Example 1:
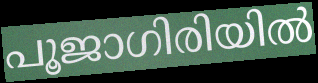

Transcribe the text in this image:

പൂജാഗിരിയിൽ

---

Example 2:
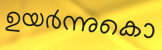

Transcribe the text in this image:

ഉയർന്നുകൊ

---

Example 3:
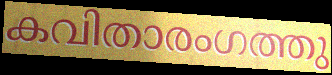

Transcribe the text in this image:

കവിതാരംഗത്തു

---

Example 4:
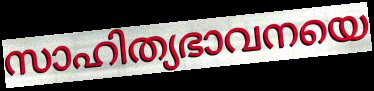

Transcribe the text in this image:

സാഹിത്യഭാവനയെ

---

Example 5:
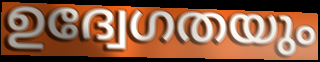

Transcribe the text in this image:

ഉദ്വേഗതയും